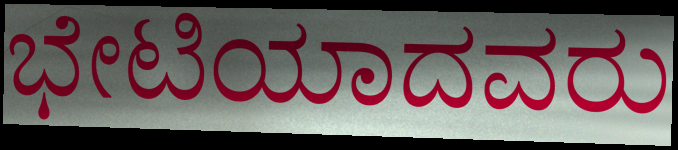
ಭೇಟಿಯಾದವರು